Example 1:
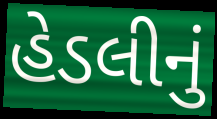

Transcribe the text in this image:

હેડલીનું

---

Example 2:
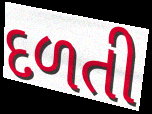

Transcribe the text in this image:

દળતી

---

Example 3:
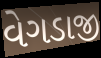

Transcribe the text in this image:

વેગડાજી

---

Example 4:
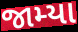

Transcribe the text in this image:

જામ્યા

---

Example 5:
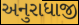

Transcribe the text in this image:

અનુરાધાજી